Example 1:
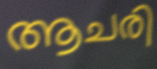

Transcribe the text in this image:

ആചരി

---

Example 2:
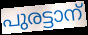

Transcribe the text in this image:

പുരട്ടാന്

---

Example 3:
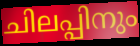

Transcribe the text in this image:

ചിലപ്പിനും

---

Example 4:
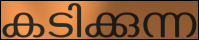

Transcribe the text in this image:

കടിക്കുന്ന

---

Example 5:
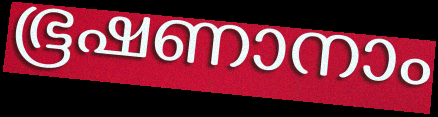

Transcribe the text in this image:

ഭൂഷണാനാം